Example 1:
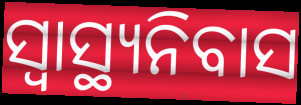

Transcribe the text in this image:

ସ୍ୱାସ୍ଥ୍ୟନିବାସ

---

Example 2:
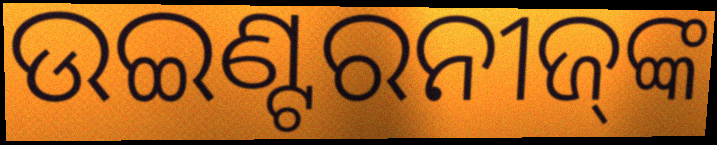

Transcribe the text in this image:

ଉଇଣ୍ଟରନୀଜ୍‌ଙ୍କ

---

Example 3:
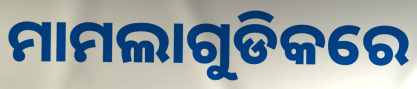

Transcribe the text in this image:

ମାମଲାଗୁଡିକରେ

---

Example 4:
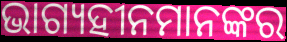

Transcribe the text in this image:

ଭାଗ୍ୟହୀନମାନଙ୍କର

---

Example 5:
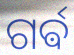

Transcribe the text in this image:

ଗର୍ଵ